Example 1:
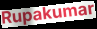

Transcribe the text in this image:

Rupakumar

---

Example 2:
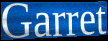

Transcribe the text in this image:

Garret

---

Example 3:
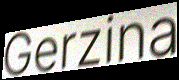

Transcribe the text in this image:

Gerzina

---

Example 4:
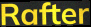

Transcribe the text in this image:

Rafter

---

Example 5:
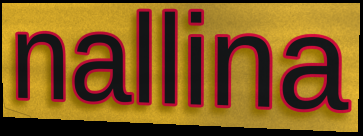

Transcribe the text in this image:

nallina